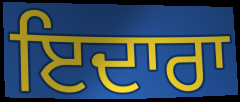
ਇਦਾਰਾ